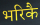
भरिकै